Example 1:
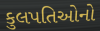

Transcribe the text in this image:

કુલપતિઓનો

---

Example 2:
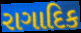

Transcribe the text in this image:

રાગાદિક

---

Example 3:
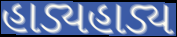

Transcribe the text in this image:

હાડ્યહાડ્ય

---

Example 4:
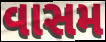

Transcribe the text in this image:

વાસમ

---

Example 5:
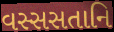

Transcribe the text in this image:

વસ્સસતાનિ